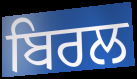
ਬਿਰਲ